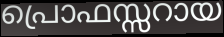
പ്രൊഫസ്സറായ